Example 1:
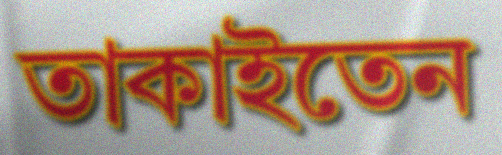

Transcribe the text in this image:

তাকাইতেন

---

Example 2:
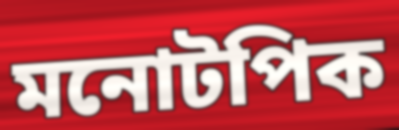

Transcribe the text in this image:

মনোটপিক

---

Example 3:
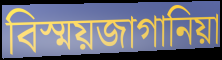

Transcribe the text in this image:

বিস্ময়জাগানিয়া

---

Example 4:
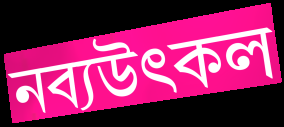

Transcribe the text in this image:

নব্যউৎকল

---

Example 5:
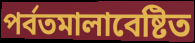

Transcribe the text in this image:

পর্বতমালাবেষ্টিত